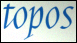
topos